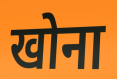
खोना